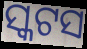
ସ୍କଟସ